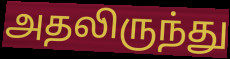
அதலிருந்து